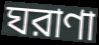
ঘরাণা